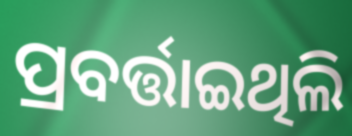
ପ୍ରବର୍ତ୍ତାଇଥିଲି